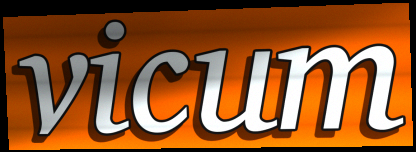
vicum